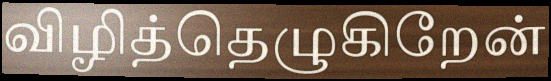
விழித்தெழுகிறேன்